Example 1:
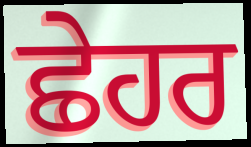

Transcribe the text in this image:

ਛੇਹਰ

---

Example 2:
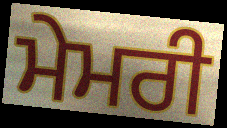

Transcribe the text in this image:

ਮੇਮਰੀ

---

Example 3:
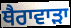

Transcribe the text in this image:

ਥੈਰਾਵਾੜਾ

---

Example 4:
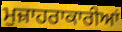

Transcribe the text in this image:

ਮੁਜ਼ਾਹਰਾਕਾਰੀਆਂ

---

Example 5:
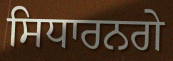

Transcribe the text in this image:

ਸਿਧਾਰਨਗੇ